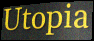
Utopia